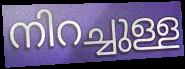
നിറച്ചുള്ള